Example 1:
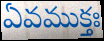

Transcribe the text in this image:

ఏవముక్తః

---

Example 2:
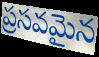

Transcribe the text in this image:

ప్రసవమైన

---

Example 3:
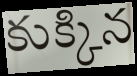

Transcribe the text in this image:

కుక్కిన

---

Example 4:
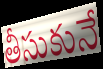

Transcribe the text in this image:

తీసుకునే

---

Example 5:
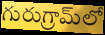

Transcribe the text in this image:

గురుగ్రామ్‌లో